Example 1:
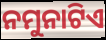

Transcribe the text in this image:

ନମୁନାଟିଏ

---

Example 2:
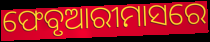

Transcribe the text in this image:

ଫେବୃଆରୀମାସରେ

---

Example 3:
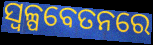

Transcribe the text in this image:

ସ୍ୱଳ୍ପବେତନରେ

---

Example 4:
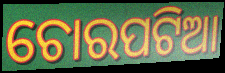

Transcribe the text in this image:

ଚୋରପଟିଆ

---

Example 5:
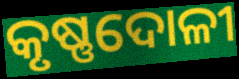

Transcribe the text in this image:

କୃଷ୍ଣଦୋଳୀ